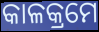
କାଳକ୍ରମେ